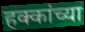
हक्कांच्या